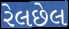
રેલછેલ